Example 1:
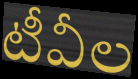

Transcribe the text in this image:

టీవీల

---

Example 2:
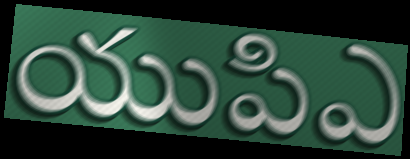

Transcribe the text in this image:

యుపిఎ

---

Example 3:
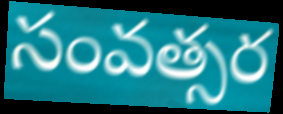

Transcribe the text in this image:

సంవత్సర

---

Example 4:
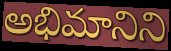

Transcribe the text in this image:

అభిమానిని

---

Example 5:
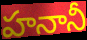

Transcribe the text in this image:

హనానీ